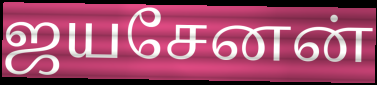
ஜயசேனன்